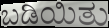
ಬಡಿಯಿತು